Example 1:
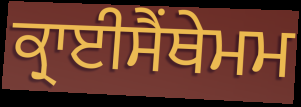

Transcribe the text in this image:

ਕ੍ਰਾਈਸੈਂਥੇਮਮ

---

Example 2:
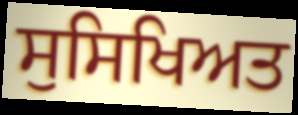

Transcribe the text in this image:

ਸੁਸਿਖਿਅਤ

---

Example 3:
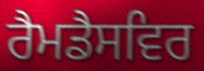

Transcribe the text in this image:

ਰੈਮਡੈਸਵਿਰ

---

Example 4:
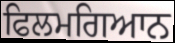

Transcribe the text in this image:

ਫਿਲਮਗਿਆਨ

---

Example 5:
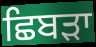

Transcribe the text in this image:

ਛਿਬੜਾ